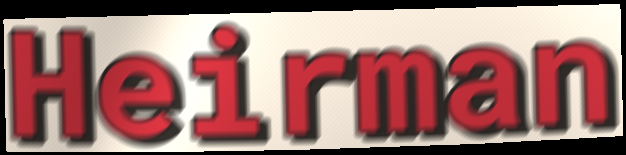
Heirman